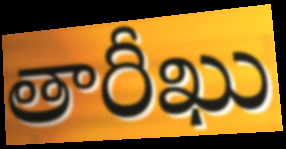
తారీఖు